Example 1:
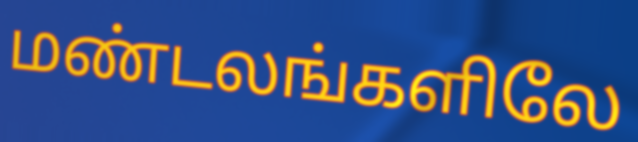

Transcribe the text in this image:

மண்டலங்களிலே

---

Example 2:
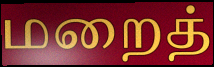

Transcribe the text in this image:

மறைத்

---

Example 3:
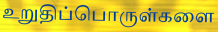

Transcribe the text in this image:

உறுதிப்பொருள்களை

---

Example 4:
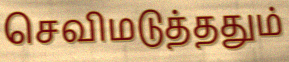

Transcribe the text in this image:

செவிமடுத்ததும்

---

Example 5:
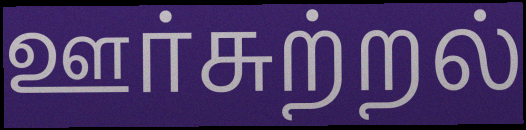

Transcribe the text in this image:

ஊர்சுற்றல்